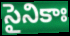
సైనికాః